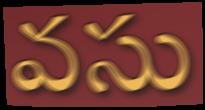
వసు